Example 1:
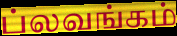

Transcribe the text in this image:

ப்லவங்கம்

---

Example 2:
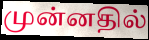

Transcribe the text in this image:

முன்னதில்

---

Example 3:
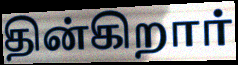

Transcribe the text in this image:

தின்கிறார்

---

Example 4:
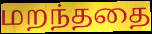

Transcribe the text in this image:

மறந்ததை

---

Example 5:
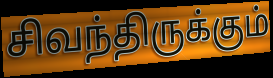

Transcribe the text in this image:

சிவந்திருக்கும்